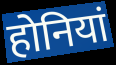
होनियां